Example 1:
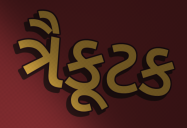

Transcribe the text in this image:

ત્રૈકૂટક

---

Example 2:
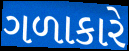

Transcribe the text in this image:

ગળાકારે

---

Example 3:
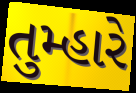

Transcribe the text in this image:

તુમ્હારે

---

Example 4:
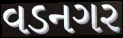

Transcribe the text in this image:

વડનગર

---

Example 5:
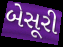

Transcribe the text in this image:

બેસૂરી